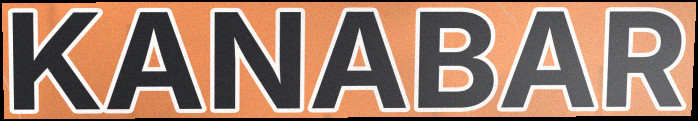
KANABAR